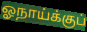
ஓநாய்க்குப்